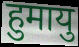
हुमायु